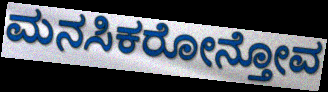
ಮನಸಿಕರೋನ್ತೋವ